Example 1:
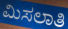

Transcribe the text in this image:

ಮಿಸಲಾತಿ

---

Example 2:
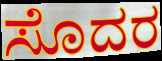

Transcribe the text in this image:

ಸೊದರ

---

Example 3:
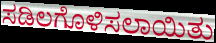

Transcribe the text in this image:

ಸಡಿಲಗೊಳಿಸಲಾಯಿತು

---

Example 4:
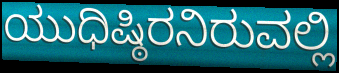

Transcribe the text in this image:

ಯುಧಿಷ್ಠಿರನಿರುವಲ್ಲಿ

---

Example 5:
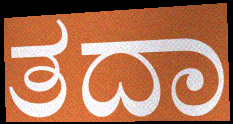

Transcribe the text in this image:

ತದಾ